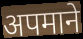
अपमाने